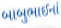
બાબુભાઈનાં